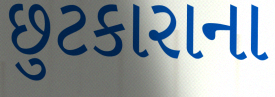
છુટકારાના